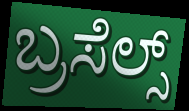
ಬ್ರಸೆಲ್ಸ್